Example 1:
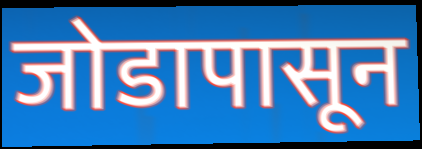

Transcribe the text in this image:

जोडापासून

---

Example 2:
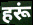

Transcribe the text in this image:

हरूं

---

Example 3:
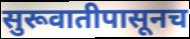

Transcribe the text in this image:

सुरूवातीपासूनच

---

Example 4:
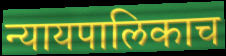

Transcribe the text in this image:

न्यायपालिकाच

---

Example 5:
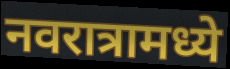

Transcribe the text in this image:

नवरात्रामध्ये